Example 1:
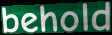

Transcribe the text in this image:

behold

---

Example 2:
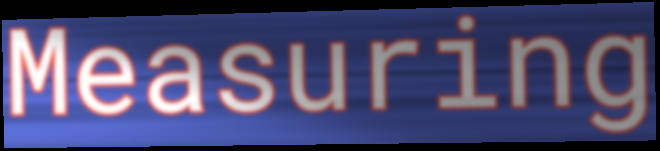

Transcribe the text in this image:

Measuring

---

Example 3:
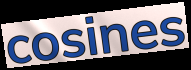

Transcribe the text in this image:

cosines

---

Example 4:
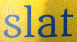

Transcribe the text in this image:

slat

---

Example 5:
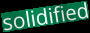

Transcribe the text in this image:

solidified